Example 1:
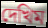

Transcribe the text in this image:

দেখিম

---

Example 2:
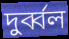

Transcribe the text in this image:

দুৰ্ব্বল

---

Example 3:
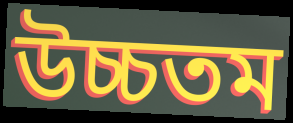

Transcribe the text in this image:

উচ্চতম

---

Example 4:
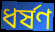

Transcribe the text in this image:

ধৰ্ষণ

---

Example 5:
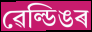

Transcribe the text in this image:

ৱেল্ডিঙৰ